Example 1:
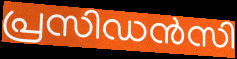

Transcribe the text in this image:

പ്രസിഡൻസി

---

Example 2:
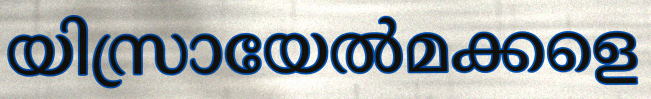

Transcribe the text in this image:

യിസ്രായേൽമക്കളെ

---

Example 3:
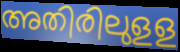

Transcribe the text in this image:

അതിരിലുളള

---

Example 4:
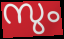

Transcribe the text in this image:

സും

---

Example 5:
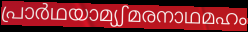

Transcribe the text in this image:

പ്രാർഥയാമ്യഽമരനാഥമഹം